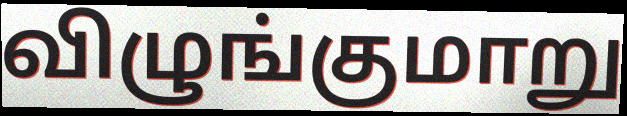
விழுங்குமாறு